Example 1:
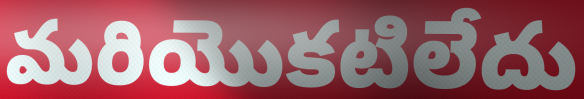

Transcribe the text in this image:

మరియొకటిలేదు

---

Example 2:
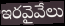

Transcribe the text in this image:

ఇరవైవేలు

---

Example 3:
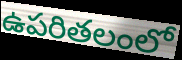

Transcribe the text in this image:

ఉపరితలంలో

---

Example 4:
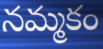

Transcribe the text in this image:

నమ్మకం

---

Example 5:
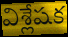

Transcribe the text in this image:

విశ్లేషక